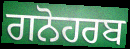
ਗਨੋਹਰਬ